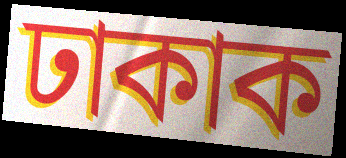
ঢাকাক